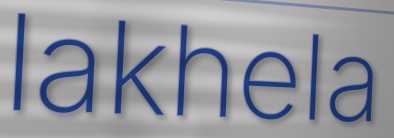
lakhela